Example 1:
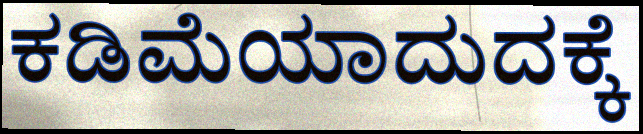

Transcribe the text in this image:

ಕಡಿಮೆಯಾದುದಕ್ಕೆ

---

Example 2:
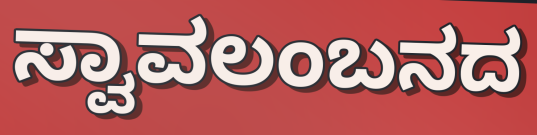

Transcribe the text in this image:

ಸ್ವಾವಲಂಬನದ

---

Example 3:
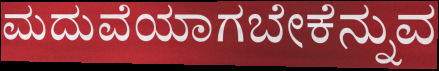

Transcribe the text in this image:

ಮದುವೆಯಾಗಬೇಕೆನ್ನುವ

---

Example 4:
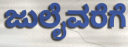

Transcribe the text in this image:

ಜುಲೈವರೆಗೆ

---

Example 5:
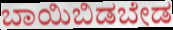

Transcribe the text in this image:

ಬಾಯಿಬಿಡಬೇಡ